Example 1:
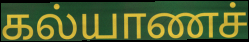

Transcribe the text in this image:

கல்யாணச்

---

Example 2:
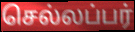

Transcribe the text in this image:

செல்லப்பர்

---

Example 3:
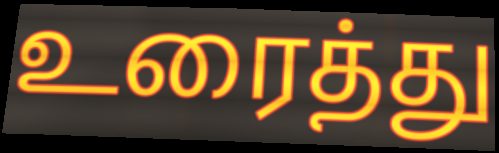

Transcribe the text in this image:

உரைத்து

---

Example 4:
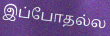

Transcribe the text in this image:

இப்போதல்ல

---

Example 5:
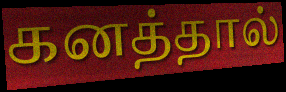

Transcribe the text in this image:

கனத்தால்